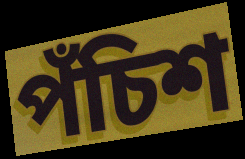
পঁচিশ